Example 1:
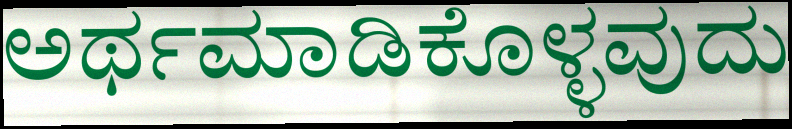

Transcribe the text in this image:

ಅರ್ಥಮಾಡಿಕೊಳ್ಳವುದು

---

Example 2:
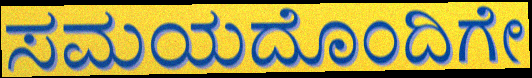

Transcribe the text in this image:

ಸಮಯದೊಂದಿಗೇ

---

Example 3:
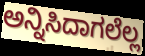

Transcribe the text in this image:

ಅನ್ನಿಸಿದಾಗಲೆಲ್ಲ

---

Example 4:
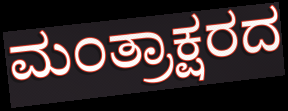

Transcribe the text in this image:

ಮಂತ್ರಾಕ್ಷರದ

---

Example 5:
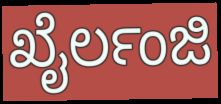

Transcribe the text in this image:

ಖೈರ್ಲಂಜಿ